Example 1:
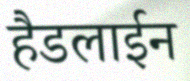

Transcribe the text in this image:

हैडलाईन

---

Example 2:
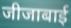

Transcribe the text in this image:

जीजाबाई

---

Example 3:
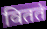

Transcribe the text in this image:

विततं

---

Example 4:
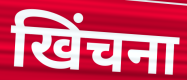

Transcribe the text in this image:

खिंचना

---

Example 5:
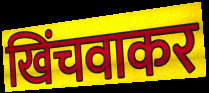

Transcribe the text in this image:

खिंचवाकर